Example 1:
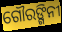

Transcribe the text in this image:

ଗୌରଙ୍ଗିନୀ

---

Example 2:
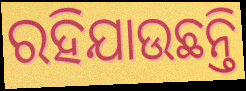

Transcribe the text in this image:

ରହିଯାଉଛନ୍ତି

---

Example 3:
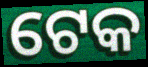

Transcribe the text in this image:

ଟେକ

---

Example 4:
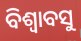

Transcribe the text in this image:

ବିଶ୍ୱାବସୁ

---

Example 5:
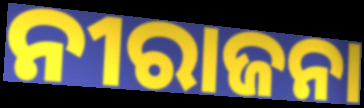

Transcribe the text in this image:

ନୀରାଜନା